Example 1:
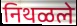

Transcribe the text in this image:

निथळले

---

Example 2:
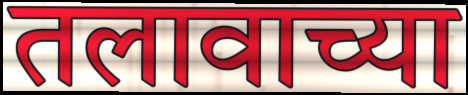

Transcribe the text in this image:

तलावाच्या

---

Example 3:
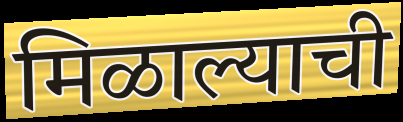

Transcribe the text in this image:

मिळाल्याची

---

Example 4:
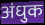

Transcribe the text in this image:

अंधुक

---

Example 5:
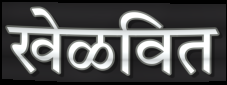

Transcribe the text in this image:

खेळवित